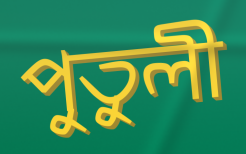
পুতুলী